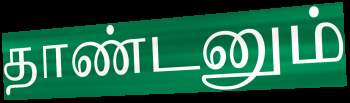
தாண்டனும்